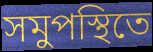
সমুপস্থিতে